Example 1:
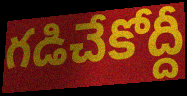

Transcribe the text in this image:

గడిచేకోద్దీ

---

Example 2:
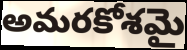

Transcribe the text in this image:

అమరకోశమై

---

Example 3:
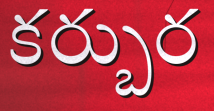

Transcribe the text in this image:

కర్బుర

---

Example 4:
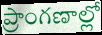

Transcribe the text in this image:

ప్రాంగణాల్లో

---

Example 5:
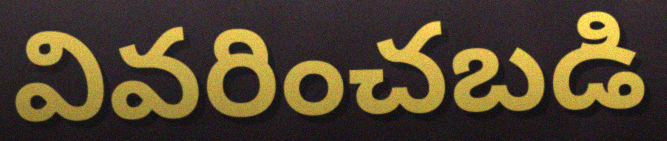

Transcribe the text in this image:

వివరించబడి